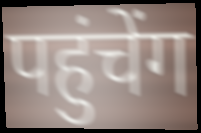
पहुंचेंग